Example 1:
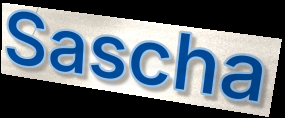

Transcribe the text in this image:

Sascha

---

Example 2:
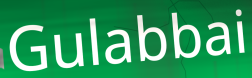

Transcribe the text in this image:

Gulabbai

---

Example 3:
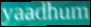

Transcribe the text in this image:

yaadhum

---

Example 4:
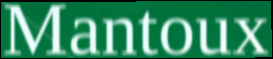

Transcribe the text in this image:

Mantoux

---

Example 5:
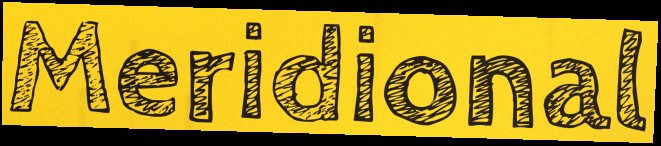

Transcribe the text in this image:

Meridional